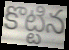
కొట్టిన